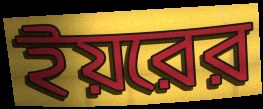
ইয়রের